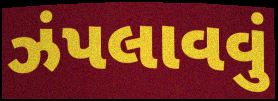
ઝંપલાવવું